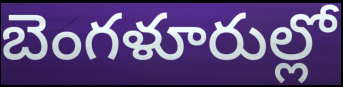
బెంగళూరుల్లో